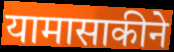
यामासाकीने